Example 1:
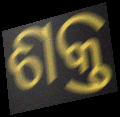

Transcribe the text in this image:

ଶକ୍ତ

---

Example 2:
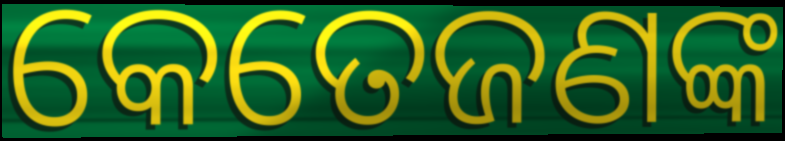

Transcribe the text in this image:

କେତେଜଣଙ୍କ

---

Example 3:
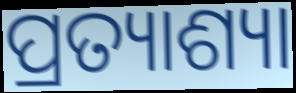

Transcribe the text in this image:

ପ୍ରତ୍ୟାଶ୍ୟା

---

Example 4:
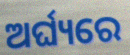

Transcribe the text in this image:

ଅର୍ଘ୍ୟରେ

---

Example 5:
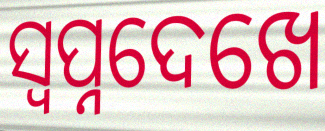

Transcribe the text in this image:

ସ୍ୱପ୍ନଦେଖେ